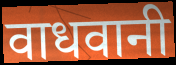
वाधवानी